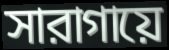
সারাগায়ে